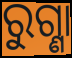
ରୁଗ୍ଣା